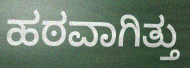
ಹಠವಾಗಿತ್ತು